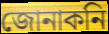
জোনাকনি